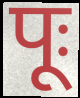
पूः